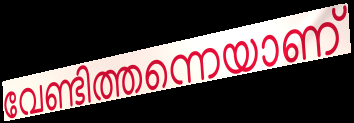
വേണ്ടിത്തന്നെയാണ്